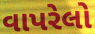
વાપરેલો